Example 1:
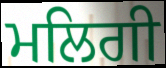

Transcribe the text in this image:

ਮਲਿਗੀ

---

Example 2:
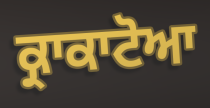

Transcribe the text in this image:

ਕ੍ਰਾਕਾਟੋਆ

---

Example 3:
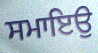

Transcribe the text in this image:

ਸਮਾਇਉ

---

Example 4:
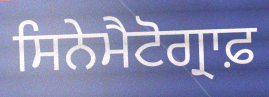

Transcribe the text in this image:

ਸਿਨੇਮੈਟੋਗ੍ਰਾਫ਼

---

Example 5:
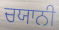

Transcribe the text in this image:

ਚਯਾਨੀ